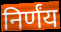
निर्णंय